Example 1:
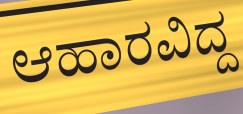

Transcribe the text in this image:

ಆಹಾರವಿದ್ದ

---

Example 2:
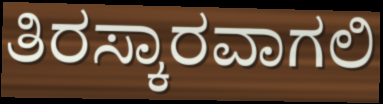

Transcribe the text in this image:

ತಿರಸ್ಕಾರವಾಗಲಿ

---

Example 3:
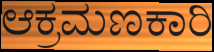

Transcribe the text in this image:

ಆಕ್ರಮಣಕಾರಿ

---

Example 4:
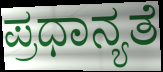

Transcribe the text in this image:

ಪ್ರಧಾನ್ಯತೆ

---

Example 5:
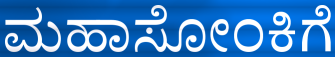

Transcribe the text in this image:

ಮಹಾಸೋಂಕಿಗೆ